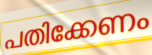
പതിക്കേണം